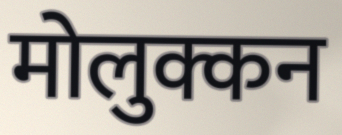
मोलुक्कन